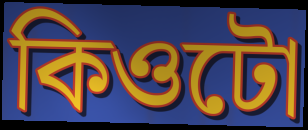
কিওটো